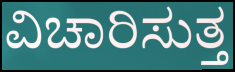
ವಿಚಾರಿಸುತ್ತ